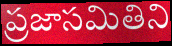
ప్రజాసమితిని